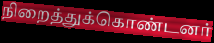
நிறைத்துக்கொண்டனர்